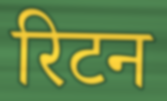
रिटन